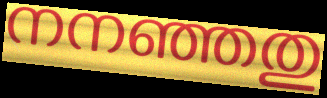
നനഞ്ഞതു